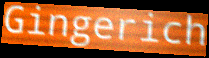
Gingerich